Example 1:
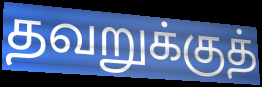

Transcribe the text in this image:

தவறுக்குத்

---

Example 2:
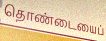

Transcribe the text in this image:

தொண்டையைப்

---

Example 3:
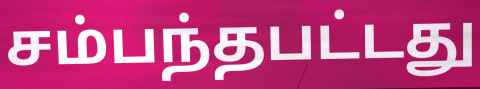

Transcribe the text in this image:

சம்பந்தபட்டது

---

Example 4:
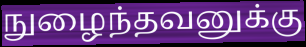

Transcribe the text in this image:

நுழைந்தவனுக்கு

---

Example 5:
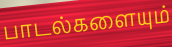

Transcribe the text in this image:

பாடல்களையும்